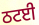
ਠਟਈ